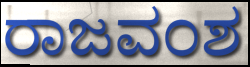
ರಾಜವಂಶ